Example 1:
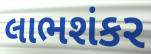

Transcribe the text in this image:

લાભશંકર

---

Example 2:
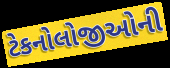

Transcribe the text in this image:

ટેકનોલોજીઓની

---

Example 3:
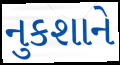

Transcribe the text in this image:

નુકશાને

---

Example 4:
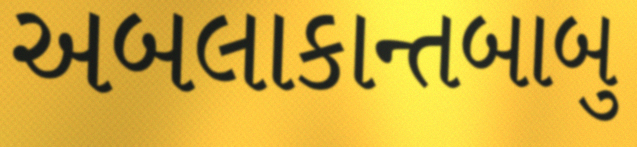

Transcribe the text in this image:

અબલાકાન્તબાબુ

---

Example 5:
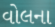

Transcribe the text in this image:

વોલના